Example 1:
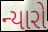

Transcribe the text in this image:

ન્યારો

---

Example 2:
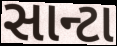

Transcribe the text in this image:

સાન્ટા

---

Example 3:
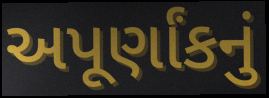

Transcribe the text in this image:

અપૂર્ણાંકનું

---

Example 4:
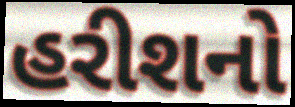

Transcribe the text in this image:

હરીશનો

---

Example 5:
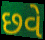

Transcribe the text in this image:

છવે